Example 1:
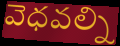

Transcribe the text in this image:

వెధవల్ని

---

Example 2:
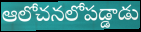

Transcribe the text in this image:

ఆలోచనలోపడ్డాడు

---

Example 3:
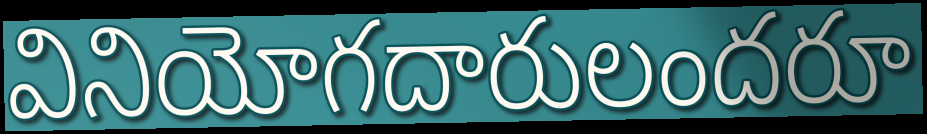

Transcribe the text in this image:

వినియోగదారులందరూ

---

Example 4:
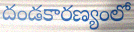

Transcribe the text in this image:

దండకారణ్యంలో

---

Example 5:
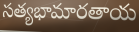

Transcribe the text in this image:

సత్యభామారతాయ